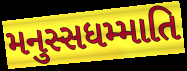
મનુસ્સધમ્માતિ